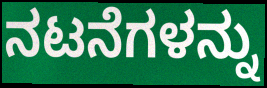
ನಟನೆಗಳನ್ನು